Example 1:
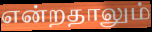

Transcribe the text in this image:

என்றதாலும்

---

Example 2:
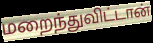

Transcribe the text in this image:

மறைந்துவிட்டான்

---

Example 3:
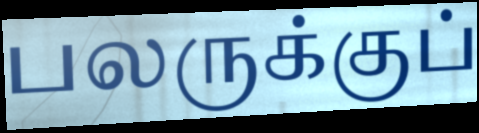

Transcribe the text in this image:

பலருக்குப்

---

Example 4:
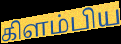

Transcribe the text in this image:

கிளம்பிய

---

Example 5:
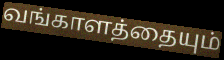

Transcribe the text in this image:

வங்காளத்தையும்